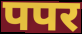
पपर